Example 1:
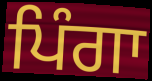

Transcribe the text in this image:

ਪਿੰਗਾ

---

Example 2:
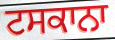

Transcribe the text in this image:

ਟਸਕਾਨਾ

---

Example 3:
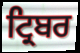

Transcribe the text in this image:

ਟ੍ਰਿਬਰ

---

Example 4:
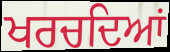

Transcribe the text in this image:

ਖਰਚਦਿਆਂ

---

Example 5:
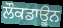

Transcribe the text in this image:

ਲੌਕਡਾਊਨ